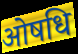
ओषधि